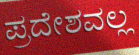
ಪ್ರದೇಶವಲ್ಲ